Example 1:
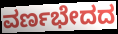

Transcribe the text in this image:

ವರ್ಣಭೇದದ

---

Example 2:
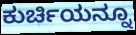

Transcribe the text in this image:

ಕುರ್ಚಿಯನ್ನೂ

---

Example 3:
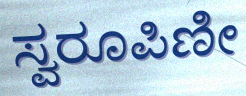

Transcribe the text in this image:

ಸ್ವರೂಪಿಣೀ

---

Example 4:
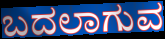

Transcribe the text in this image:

ಬದಲಾಗುವ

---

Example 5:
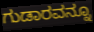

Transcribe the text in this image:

ಗುಡಾರವನ್ನೂ